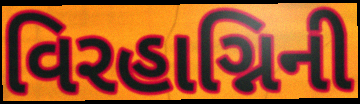
વિરહાગ્નિની